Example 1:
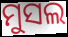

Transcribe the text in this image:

ମୁସଲ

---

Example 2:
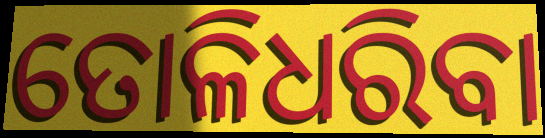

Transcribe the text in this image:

ତୋଳିଧରିବା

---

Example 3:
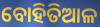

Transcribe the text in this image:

ବୋହିତିଆଳ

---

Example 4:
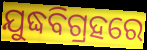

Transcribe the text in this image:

ଯୁଦ୍ଧବିଗ୍ରହରେ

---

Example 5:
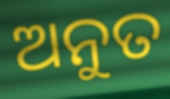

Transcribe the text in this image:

ଅନୁତ